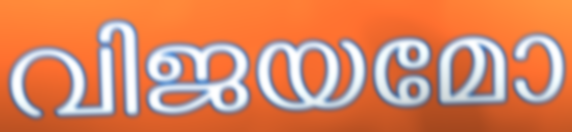
വിജയമോ